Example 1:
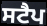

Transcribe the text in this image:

ਸਟੈਪ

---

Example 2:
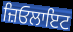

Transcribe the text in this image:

ਜ਼ਿਓਲਾਇਟ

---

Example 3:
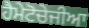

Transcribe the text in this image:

ਹੈਮੇਟੋਚੇਜੀਆ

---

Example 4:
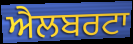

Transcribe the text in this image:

ਐਲਬਰਟਾ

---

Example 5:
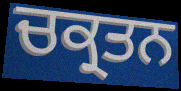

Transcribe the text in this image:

ਚਕ੍ਰਤਨ